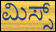
ಮಿಸ್ಸ್